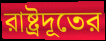
রাষ্ট্রদূতের